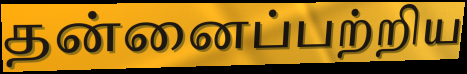
தன்னைப்பற்றிய